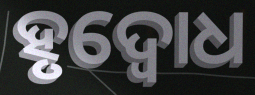
ହୃଦ୍ବୋଧ